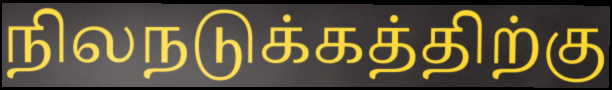
நிலநடுக்கத்திற்கு